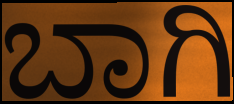
ಬಾಗಿ